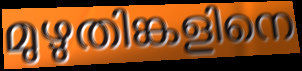
മുഴുതിങ്കളിനെ